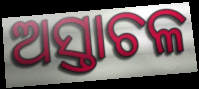
ଅସ୍ତାଚଳ